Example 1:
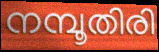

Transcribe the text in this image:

നമ്പൂതിരി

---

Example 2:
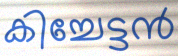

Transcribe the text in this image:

കിച്ചേട്ടൻ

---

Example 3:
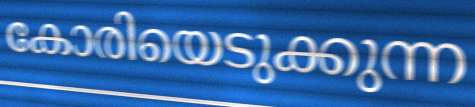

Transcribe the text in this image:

കോരിയെടുക്കുന്ന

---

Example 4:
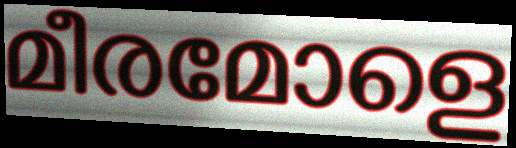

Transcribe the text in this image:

മീരമോളെ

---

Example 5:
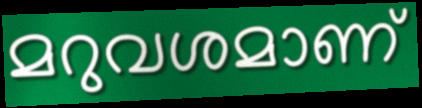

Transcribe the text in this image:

മറുവശമാണ്